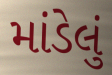
માંડેલું